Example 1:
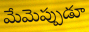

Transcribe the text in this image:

మేమెప్పుడూ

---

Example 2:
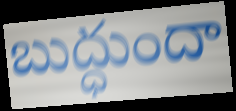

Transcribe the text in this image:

బుద్ధుందా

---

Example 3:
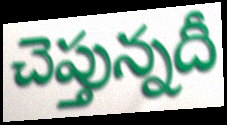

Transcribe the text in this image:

చెప్తున్నదీ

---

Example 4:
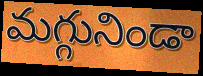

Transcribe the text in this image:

మగ్గునిండా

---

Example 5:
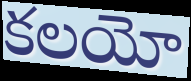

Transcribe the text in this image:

కలయో